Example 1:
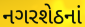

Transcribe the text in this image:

નગરશેઠનાં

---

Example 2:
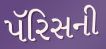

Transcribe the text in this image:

પૅરિસની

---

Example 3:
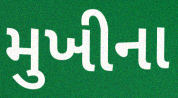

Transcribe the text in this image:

મુખીના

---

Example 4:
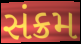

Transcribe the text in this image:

સંક્રમ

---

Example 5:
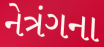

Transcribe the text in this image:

નેત્રંગના